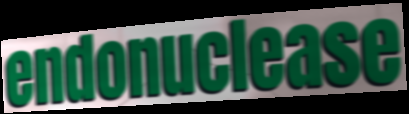
endonuclease